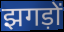
झगड़ों